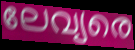
ലേവ്യരെ